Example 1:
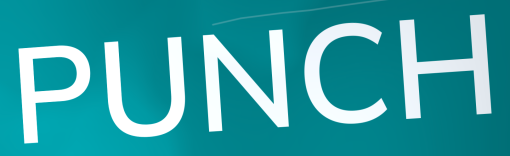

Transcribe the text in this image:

PUNCH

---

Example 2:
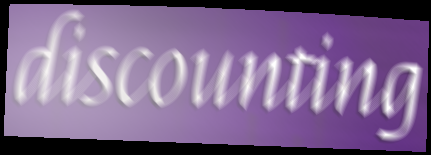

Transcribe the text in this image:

discounting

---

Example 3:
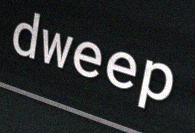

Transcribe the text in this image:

dweep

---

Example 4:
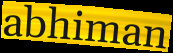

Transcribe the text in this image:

abhiman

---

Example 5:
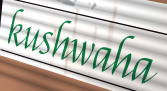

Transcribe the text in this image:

kushwaha